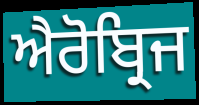
ਐਰੋਬ੍ਰਿਜ